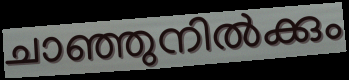
ചാഞ്ഞുനിൽക്കും